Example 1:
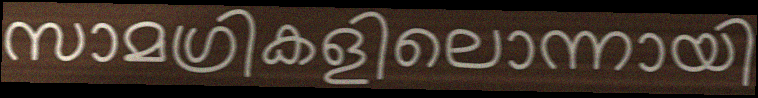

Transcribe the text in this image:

സാമഗ്രികളിലൊന്നായി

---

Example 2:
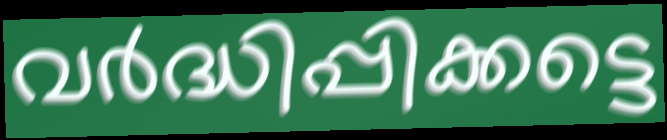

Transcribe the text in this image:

വർദ്ധിപ്പിക്കട്ടെ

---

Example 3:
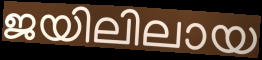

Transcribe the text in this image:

ജയിലിലായ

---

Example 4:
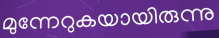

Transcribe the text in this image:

മുന്നേറുകയായിരുന്നു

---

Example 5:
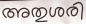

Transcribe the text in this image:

അതുശരി